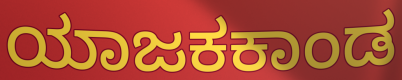
ಯಾಜಕಕಾಂಡ